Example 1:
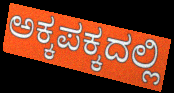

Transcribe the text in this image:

ಅಕ್ಕಪಕ್ಕದಲ್ಲಿ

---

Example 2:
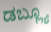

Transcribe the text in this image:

ಡಬ್ಲ್ಯೂ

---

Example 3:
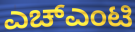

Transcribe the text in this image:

ಎಚ್ಎಂಟಿ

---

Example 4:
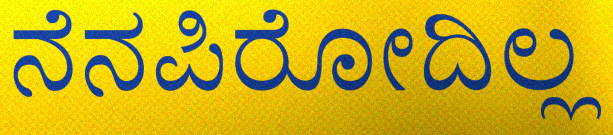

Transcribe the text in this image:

ನೆನಪಿರೋದಿಲ್ಲ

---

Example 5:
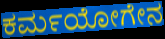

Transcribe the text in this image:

ಕರ್ಮಯೋಗೇನ